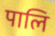
पालि